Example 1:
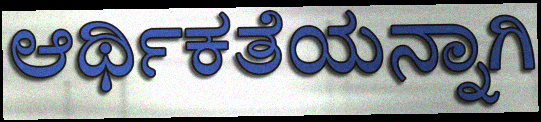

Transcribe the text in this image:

ಆರ್ಥಿಕತೆಯನ್ನಾಗಿ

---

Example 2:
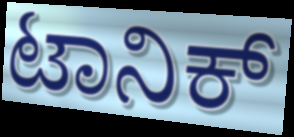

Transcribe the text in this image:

ಟಾನಿಕ್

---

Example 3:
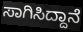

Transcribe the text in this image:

ಸಾಗಿಸಿದ್ದಾನೆ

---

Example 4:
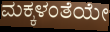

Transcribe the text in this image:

ಮಕ್ಕಳಂತೆಯೇ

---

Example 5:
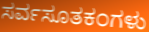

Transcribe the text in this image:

ಸರ್ವಸೂತಕಂಗಳು